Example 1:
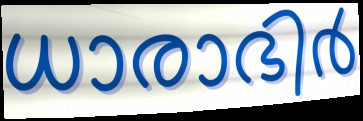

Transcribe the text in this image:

ധാരാഭിർ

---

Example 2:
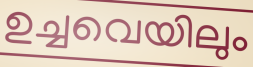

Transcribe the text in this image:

ഉച്ചവെയിലും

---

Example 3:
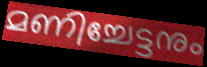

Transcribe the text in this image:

മണിച്ചേട്ടനും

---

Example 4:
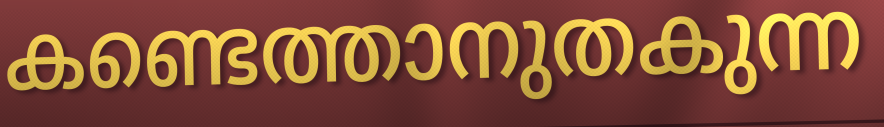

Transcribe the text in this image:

കണ്ടെത്താനുതകുന്ന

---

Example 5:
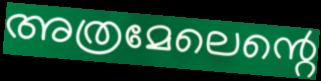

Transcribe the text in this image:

അത്രമേലെന്റെ